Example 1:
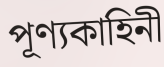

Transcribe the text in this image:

পূণ্যকাহিনী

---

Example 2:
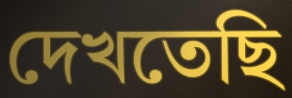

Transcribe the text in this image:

দেখতেছি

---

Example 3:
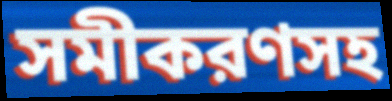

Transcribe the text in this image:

সমীকরণসহ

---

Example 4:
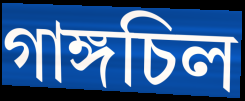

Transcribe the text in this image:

গাঙ্গচিল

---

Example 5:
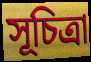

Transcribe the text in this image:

সূচিত্রা